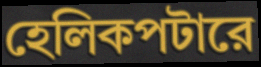
হেলিকপটারে